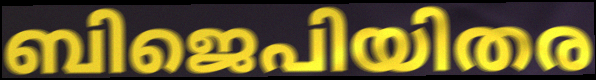
ബിജെപിയിതര